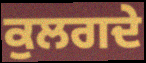
ਕੁਲਗਦੇ